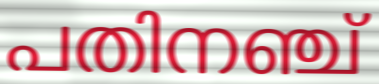
പതിനഞ്ച്